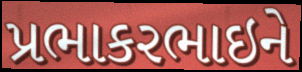
પ્રભાકરભાઇને